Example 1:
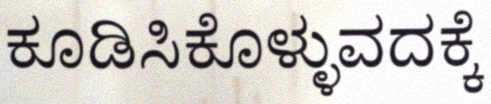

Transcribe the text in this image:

ಕೂಡಿಸಿಕೊಳ್ಳುವದಕ್ಕೆ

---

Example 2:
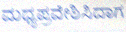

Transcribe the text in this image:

ಮಧ್ಯಪ್ರವೇಶಿಸಿದಾಗ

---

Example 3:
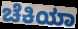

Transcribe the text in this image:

ಚೆಕಿಯಾ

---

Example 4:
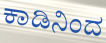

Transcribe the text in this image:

ಕಾಡಿನಿಂದ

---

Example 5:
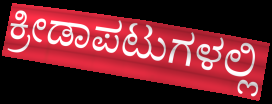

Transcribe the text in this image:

ಕ್ರೀಡಾಪಟುಗಳಲ್ಲಿ